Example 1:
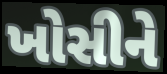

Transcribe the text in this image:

ખોસીને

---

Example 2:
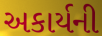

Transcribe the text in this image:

અકાર્યની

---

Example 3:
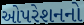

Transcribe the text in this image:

ઓપરેશનનો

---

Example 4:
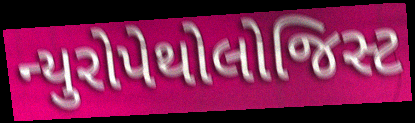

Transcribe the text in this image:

ન્યુરોપેથોલોજિસ્ટ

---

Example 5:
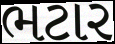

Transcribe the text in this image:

ભટાર